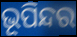
ଭୂପିନ୍ଦର